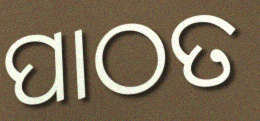
ପାଠତ